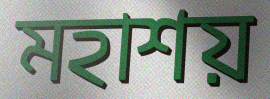
মহাশয়